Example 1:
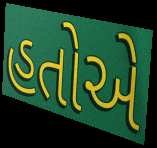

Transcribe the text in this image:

હતોએ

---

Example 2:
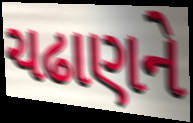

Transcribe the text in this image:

ચઢાણને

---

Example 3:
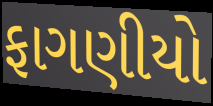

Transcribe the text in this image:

ફાગણીયો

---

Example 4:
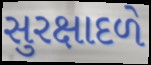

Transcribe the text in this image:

સુરક્ષાદળે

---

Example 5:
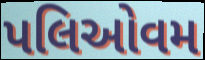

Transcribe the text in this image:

પલિઓવમ